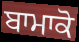
ਬਾਮਾਕੋ